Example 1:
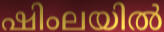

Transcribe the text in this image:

ഷിംലയിൽ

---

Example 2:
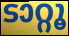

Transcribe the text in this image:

ടാറ്റൂ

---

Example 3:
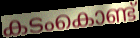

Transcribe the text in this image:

കടംകൊണ്ട്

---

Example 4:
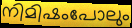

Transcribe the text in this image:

നിമിഷംപോലും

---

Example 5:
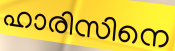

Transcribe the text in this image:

ഹാരിസിനെ